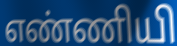
எண்ணியி